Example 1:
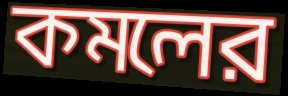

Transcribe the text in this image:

কমলের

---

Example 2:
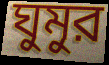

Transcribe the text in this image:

ঘুমুর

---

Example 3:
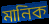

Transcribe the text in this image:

মানিক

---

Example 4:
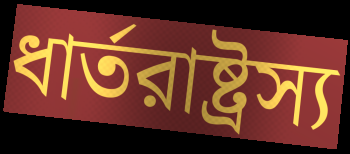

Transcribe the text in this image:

ধার্তরাষ্ট্রস্য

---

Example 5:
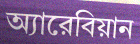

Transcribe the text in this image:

অ্যারেবিয়ান